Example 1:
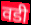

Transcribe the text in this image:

वडी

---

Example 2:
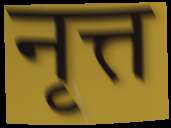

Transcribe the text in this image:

नृत्त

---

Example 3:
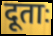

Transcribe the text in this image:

दूताः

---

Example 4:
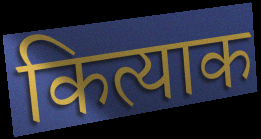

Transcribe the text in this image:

कित्याक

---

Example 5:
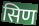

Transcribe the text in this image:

सिण